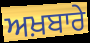
ਅਖ਼ਬਾਰੇ